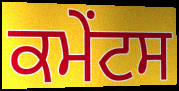
ਕਮੇੰਟਸ